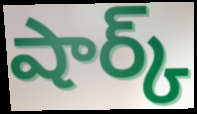
షార్క్